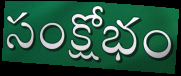
సంక్షోభం